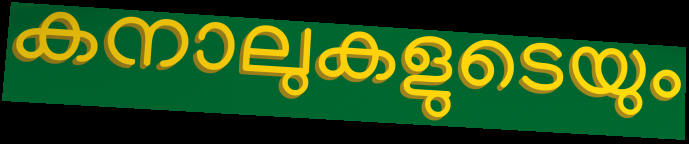
കനാലുകളുടെയും